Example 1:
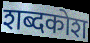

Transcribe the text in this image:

शब्दकोश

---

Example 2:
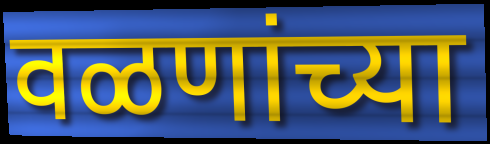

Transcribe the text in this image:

वळणांच्या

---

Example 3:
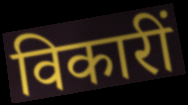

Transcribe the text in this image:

विकारीं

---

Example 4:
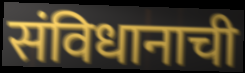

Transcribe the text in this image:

संविधानाची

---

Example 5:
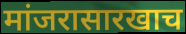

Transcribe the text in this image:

मांजरासारखाच